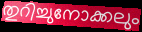
തുറിച്ചുനോക്കലും